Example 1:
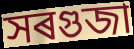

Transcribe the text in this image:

সৰগুজা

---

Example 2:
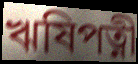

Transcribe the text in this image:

ঋষিপত্নী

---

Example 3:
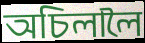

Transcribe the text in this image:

অচিলালৈ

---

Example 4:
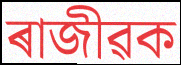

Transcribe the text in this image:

ৰাজীৱক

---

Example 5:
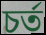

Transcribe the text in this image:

চৰ্ত